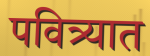
पवित्र्यात